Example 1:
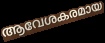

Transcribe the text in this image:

ആവേശകരമായ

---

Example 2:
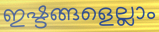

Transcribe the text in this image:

ഇഷ്ടങ്ങളെല്ലാം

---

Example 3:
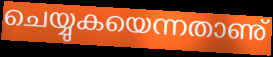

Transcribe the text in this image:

ചെയ്യുകയെന്നതാണു്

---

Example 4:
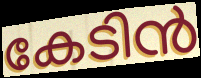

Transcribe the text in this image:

കേടിൻ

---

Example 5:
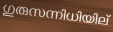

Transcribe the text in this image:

ഗുരുസന്നിധിയില്